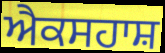
ਐਕਸਹਾਸ਼